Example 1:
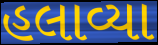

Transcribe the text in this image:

હલાવ્યા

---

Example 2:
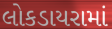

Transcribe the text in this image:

લોકડાયરામાં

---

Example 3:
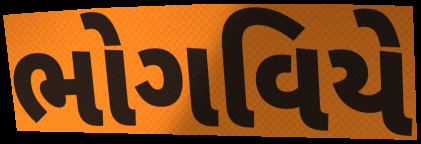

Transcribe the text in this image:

ભોગવિયે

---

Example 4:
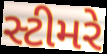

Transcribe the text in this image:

સ્ટીમરે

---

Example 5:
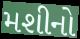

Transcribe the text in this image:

મશીનો